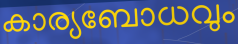
കാര്യബോധവും